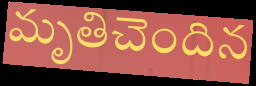
మృతిచెందిన